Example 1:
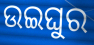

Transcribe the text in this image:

ଉଇଘୁର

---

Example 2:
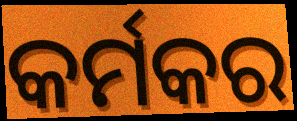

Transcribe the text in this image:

କର୍ମକର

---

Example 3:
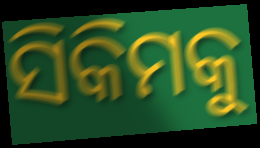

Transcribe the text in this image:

ସିକିମକୁ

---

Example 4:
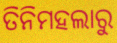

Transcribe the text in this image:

ତିନିମହଲାରୁ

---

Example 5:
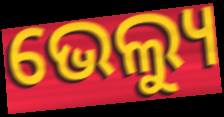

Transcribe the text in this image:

ଭେଲ୍ୟୁ